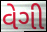
વેગી